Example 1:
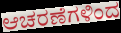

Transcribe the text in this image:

ಆಚರಣೆಗಳಿಂದ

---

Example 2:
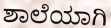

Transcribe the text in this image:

ಶಾಲೆಯಾಗಿ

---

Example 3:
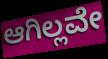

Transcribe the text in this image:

ಆಗಿಲ್ಲವೇ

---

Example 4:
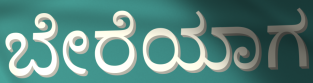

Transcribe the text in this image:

ಬೇರೆಯಾಗ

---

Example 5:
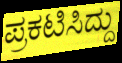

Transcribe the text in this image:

ಪ್ರಕಟಿಸಿದ್ದು